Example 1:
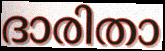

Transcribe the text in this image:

ദാരിതാ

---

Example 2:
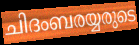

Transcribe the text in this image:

ചിദംബരയ്യരുടെ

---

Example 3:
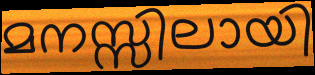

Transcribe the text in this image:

മനസ്സിലായി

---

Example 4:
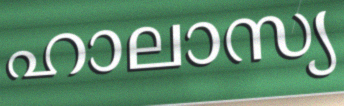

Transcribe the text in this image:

ഹാലാസ്യ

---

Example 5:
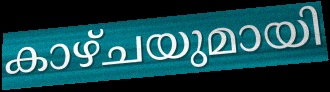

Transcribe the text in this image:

കാഴ്ചയുമായി